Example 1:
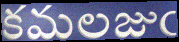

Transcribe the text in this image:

కమలజుఁ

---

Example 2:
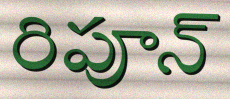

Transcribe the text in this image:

రిపూన్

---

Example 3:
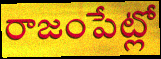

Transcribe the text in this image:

రాజంపేట్లో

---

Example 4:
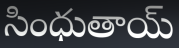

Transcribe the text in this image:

సింధుతాయ్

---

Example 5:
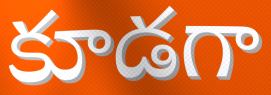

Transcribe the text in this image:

కూడగా